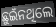
ଛୁଇଁନଥିଲେ